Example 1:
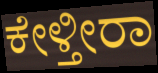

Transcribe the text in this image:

ಕೇಳ್ತೀರಾ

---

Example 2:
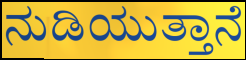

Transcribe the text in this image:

ನುಡಿಯುತ್ತಾನೆ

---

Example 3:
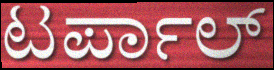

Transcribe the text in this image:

ಟರ್ಪಾಲ್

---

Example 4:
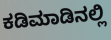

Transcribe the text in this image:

ಕಡಿಮಾಡಿನಲ್ಲಿ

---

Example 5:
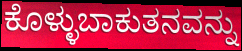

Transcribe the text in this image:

ಕೊಳ್ಳುಬಾಕುತನವನ್ನು